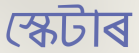
স্কেটাৰ